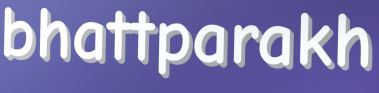
bhattparakh